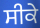
ਸੀਕੇ